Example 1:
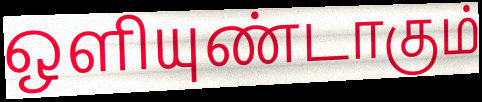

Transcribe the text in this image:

ஒளியுண்டாகும்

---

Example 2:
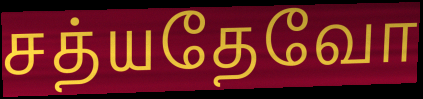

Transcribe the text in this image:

சத்யதேவோ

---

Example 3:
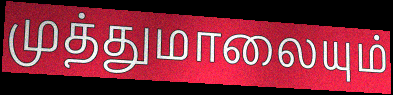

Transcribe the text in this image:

முத்துமாலையும்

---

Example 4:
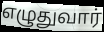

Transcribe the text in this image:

எழுதுவார்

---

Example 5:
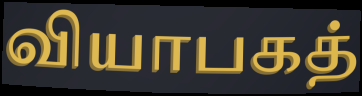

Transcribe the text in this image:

வியாபகத்